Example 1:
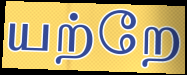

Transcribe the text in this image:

யற்றே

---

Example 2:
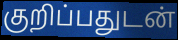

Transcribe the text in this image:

குறிப்பதுடன்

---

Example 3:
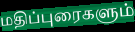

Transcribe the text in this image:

மதிப்புரைகளும்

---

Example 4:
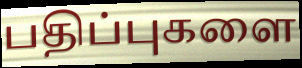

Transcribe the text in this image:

பதிப்புகளை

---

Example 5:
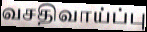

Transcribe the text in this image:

வசதிவாய்ப்பு